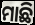
ମାଛି